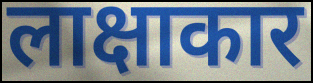
लाक्षाकार